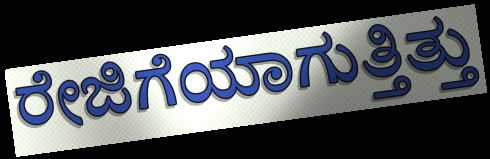
ರೇಜಿಗೆಯಾಗುತ್ತಿತ್ತು